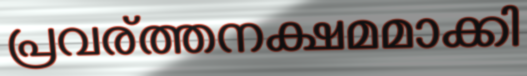
പ്രവര്ത്തനക്ഷമമാക്കി